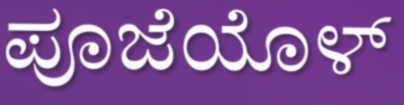
ಪೂಜೆಯೊಳ್